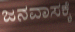
ಜನವಾಸಕ್ಕೆ